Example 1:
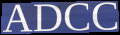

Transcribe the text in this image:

ADCC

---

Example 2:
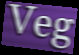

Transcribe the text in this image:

Veg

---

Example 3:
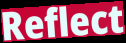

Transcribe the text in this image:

Reflect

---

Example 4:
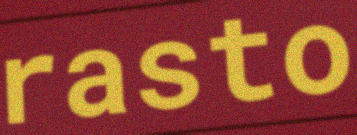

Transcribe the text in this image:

rasto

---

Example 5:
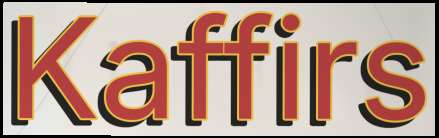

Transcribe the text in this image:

Kaffirs